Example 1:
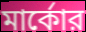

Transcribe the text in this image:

মার্কোর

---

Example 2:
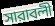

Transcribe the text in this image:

সারাবলী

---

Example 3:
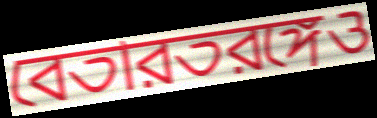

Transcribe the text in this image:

বেতারতরঙ্গেও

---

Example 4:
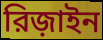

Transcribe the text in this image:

রিজ়াইন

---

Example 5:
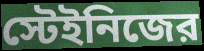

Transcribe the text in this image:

স্টেইনিজের